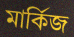
মার্কিজ